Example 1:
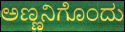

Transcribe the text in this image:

ಅಣ್ಣನಿಗೊಂದು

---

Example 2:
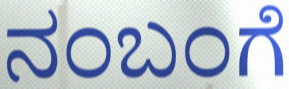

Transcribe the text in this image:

ನಂಬಂಗೆ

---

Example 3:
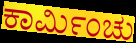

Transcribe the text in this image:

ಕಾರ್ಮಿಂಚು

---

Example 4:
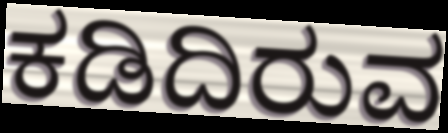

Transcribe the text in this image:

ಕಡಿದಿರುವ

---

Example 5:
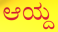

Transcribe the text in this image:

ಆಯ್ದ